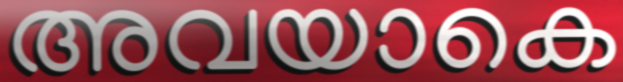
അവയാകെ